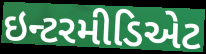
ઇન્ટરમીડિએટ